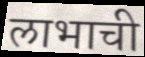
लाभाची